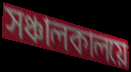
সঞ্চালকালয়ে